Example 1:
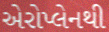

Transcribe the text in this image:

એરોપ્લેનથી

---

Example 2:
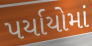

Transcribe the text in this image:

પર્યાયોમાં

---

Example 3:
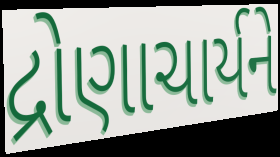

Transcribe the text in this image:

દ્રોણાચાર્યને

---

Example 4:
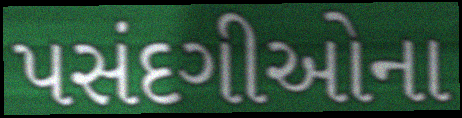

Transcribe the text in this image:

પસંદગીઓના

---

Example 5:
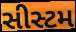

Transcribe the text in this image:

સીસ્ટમ